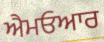
ਐਮਓਆਰ